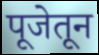
पूजेतून